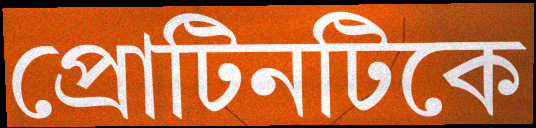
প্রোটিনটিকে